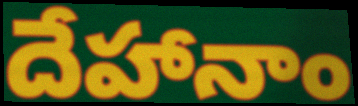
దేహానాం